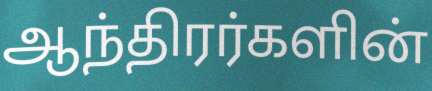
ஆந்திரர்களின்